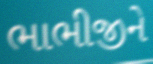
ભાભીજીને